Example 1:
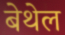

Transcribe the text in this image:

बेथेल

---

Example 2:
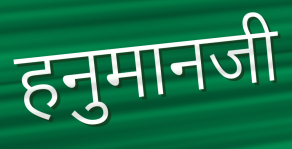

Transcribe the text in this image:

हनुमानजी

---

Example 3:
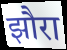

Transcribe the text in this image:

झौरा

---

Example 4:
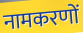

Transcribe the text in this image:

नामकरणों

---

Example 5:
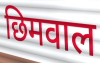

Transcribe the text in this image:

छिमवाल